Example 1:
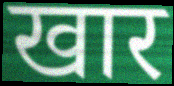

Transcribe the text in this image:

खार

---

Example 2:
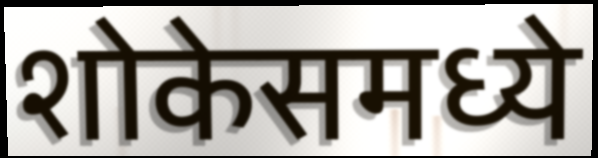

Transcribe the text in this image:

शोकेसमध्ये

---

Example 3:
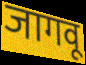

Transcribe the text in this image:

जागवू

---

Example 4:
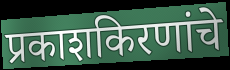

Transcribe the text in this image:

प्रकाशकिरणांचे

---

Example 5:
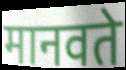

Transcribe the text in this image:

मानवते